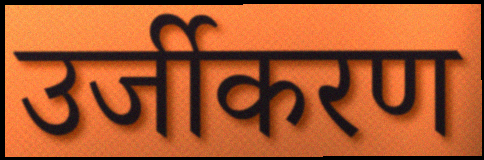
उर्जीकरण